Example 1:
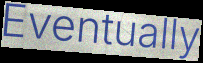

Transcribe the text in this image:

Eventually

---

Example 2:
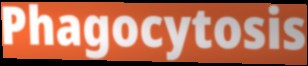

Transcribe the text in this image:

Phagocytosis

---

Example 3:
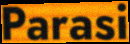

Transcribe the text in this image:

Parasi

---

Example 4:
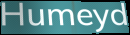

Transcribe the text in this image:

Humeyd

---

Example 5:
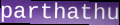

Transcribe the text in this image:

parthathu